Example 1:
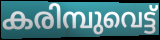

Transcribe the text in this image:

കരിമ്പുവെട്ട്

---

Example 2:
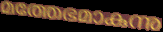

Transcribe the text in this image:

മത്തേഭമാകുന്നു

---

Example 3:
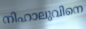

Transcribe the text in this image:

നിഹാലുവിനെ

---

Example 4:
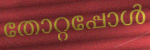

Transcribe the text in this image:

തോറ്റപ്പോൾ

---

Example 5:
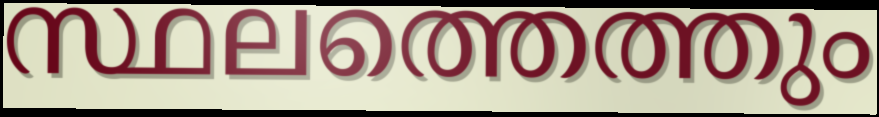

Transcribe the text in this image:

സ്ഥലത്തെത്തും